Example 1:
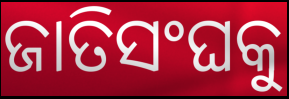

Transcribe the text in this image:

ଜାତିସଂଘକୁ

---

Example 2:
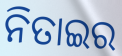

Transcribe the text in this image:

ନିତାଇର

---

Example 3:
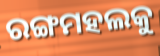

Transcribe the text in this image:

ରଙ୍ଗମହଲକୁ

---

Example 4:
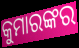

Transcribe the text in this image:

କୁମାରଙ୍କର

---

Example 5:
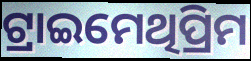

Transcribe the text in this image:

ଟ୍ରାଇମେଥିପ୍ରିମ